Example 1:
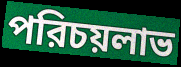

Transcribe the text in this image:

পরিচয়লাভ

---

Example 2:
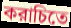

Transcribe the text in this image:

করাচিতে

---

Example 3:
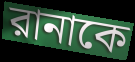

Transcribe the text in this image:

রানাকে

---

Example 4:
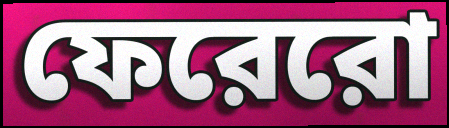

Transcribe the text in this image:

ফেরেরো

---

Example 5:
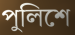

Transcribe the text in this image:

পুলিশে